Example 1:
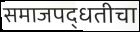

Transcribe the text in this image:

समाजपद्धतीचा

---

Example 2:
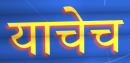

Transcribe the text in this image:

याचेच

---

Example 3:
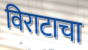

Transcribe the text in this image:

विराटाचा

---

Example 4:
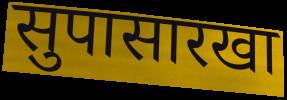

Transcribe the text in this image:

सुपासारखा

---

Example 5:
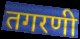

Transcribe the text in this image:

तगरणी